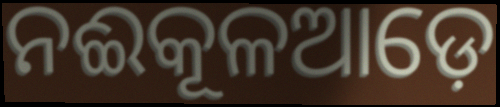
ନଈକୂଳଆଡ଼େ